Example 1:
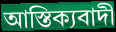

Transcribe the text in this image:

আস্তিক্যবাদী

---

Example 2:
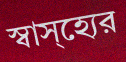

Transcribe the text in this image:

স্বাস্হ্যের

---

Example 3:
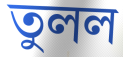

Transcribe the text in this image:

তুলল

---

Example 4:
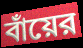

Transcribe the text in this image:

বাঁয়ের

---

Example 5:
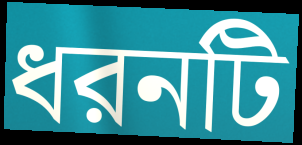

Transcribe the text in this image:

ধরনটি